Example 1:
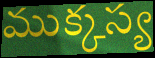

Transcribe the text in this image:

ముక్కస్య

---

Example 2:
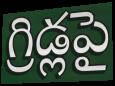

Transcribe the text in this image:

గ్రిడ్లపై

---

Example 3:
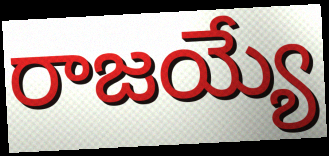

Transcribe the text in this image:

రాజయ్యే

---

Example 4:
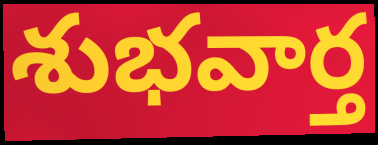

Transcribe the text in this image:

శుభవార్త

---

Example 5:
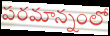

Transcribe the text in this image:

పరమాన్నంలో